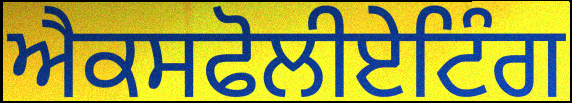
ਐਕਸਫੋਲੀਏਟਿੰਗ